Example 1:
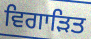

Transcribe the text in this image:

ਵਿਗਾੜਿਤ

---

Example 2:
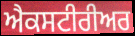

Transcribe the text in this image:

ਐਕਸਟੀਰੀਅਰ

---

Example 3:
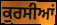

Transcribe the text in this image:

ਕੁਰਸੀਆਂ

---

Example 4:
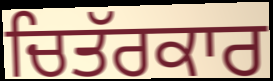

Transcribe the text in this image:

ਚਿਤੱਰਕਾਰ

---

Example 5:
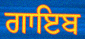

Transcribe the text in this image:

ਗਾਇਬ